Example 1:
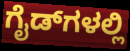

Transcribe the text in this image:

ಗೈಡ್‌ಗಳಲ್ಲಿ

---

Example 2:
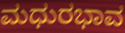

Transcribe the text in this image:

ಮಧುರಭಾವ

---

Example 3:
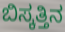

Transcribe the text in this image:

ಬಿಸ್ಕತ್ತಿನ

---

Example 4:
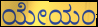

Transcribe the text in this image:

ಯೇಯಂ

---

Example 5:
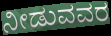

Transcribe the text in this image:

ನೀಡುವವರ